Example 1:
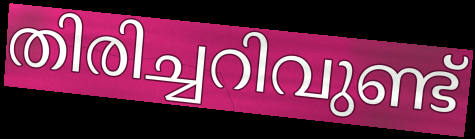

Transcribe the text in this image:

തിരിച്ചറിവുണ്ട്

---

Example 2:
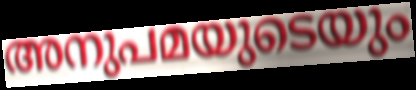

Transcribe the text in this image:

അനുപമയുടെയും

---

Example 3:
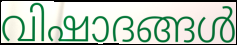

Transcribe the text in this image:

വിഷാദങ്ങൾ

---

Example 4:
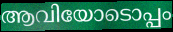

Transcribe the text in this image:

ആവിയോടൊപ്പം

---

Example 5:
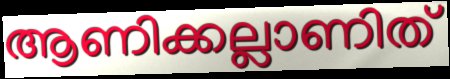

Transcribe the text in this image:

ആണിക്കല്ലാണിത്